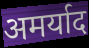
अमर्याद